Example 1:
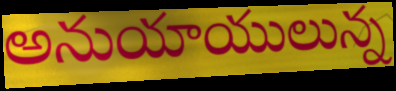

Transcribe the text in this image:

అనుయాయులున్న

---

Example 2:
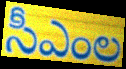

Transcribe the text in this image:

సీఎంల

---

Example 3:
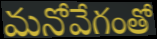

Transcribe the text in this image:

మనోవేగంతో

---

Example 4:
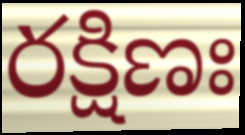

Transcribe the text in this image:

రక్షిణః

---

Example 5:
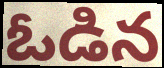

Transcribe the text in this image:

ఓడిన